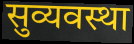
सुव्यवस्था